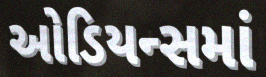
ઓડિયન્સમાં